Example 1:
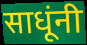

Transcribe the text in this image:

साधूंनी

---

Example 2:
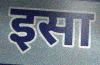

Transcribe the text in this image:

इसा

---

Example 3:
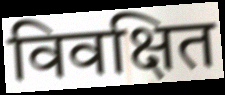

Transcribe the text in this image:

विवक्षित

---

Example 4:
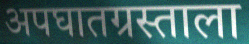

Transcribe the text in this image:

अपघातग्रस्ताला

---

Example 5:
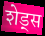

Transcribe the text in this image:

शेड्स